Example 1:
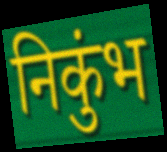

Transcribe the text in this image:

निकुंभ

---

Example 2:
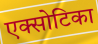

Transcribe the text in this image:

एक्सोटिका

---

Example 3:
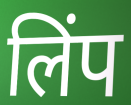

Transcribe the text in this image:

लिंप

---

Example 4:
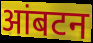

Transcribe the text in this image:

आंबटन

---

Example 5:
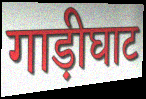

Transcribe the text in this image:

गाड़ीघाट